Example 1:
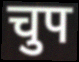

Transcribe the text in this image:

चुप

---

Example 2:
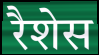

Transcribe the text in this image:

रैशेस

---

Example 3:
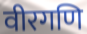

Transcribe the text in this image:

वीरगणि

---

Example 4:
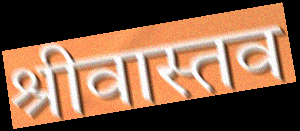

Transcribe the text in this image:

श्रीवास्तव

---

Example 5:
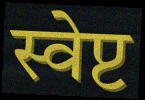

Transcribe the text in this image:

स्वेप्ट